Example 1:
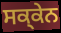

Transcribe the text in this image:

ਸਕ੍ਕੇਨ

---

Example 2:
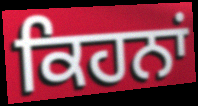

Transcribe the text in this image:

ਕਿਹਨਾਂ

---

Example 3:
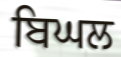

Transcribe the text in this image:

ਬਿਘਲ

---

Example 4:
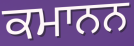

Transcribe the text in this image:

ਕਮਾਨਨ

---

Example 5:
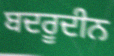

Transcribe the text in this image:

ਬਦਰੂਦੀਨ